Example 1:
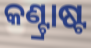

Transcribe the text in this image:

କଣ୍ଟ୍ରାଷ୍ଟ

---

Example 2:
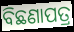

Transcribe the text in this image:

ବିଛଣାପତ୍ର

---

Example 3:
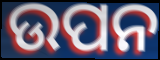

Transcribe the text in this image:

ଉପନ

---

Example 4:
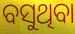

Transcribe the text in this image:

ବସୁଥିବା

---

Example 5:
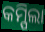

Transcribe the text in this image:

କମ୍ପିଲା